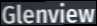
Glenview